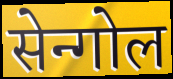
सेन्गोल